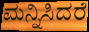
ಮನ್ನಿಸಿದರೆ